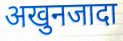
अखुनजादा